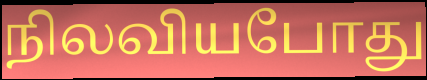
நிலவியபோது